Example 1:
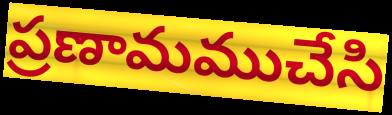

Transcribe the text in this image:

ప్రణామముచేసి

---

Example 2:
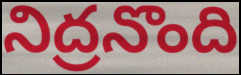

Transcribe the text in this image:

నిద్రనొంది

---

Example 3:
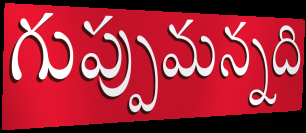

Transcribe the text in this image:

గుప్పుమన్నది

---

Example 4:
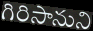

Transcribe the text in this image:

గిరిసానుని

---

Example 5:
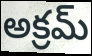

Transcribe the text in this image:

అక్రమ్